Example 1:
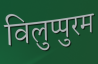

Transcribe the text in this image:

विलुप्पुरम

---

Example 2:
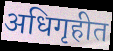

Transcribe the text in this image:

अधिगृहीत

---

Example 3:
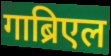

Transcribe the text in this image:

गाब्रिएल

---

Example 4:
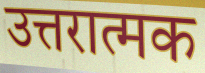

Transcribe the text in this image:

उत्तरात्मक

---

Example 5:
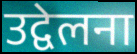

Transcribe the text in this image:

उद्वेलना